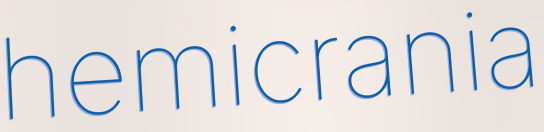
hemicrania